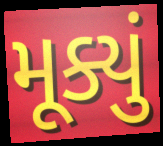
મૂક્યું